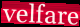
velfare